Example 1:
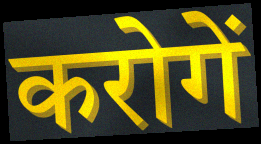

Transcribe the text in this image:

करोगें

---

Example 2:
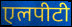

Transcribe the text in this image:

एलपीटी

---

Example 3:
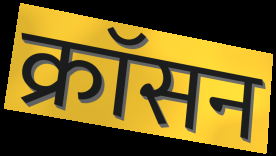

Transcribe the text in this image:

क्रॉसन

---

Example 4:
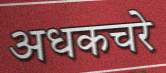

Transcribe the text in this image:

अधकचरे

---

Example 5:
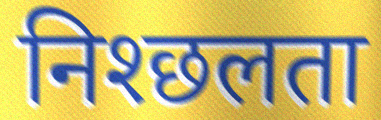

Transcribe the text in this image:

निश्छलता